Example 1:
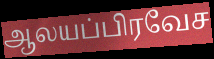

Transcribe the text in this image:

ஆலயப்பிரவேச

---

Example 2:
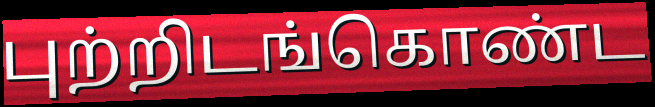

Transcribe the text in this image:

புற்றிடங்கொண்ட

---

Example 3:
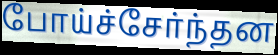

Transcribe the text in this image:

போய்ச்சேர்ந்தன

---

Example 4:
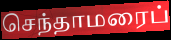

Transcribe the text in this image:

செந்தாமரைப்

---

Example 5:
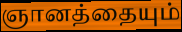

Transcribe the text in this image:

ஞானத்தையும்